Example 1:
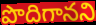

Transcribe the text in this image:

పొదిగానని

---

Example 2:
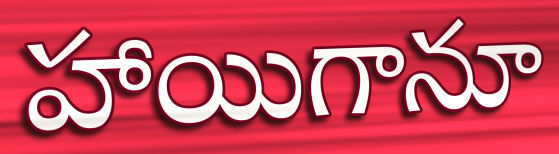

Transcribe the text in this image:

హాయిగానూ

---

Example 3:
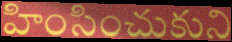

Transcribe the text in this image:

హింసించుకుని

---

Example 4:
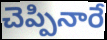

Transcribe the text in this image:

చెప్పినారే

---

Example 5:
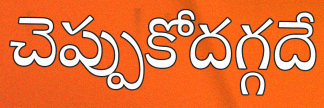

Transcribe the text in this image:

చెప్పుకోదగ్గదే